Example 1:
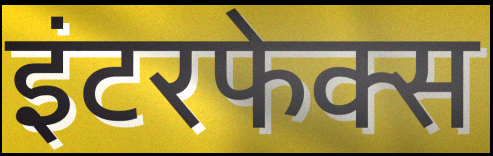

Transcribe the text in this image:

इंटरफेक्स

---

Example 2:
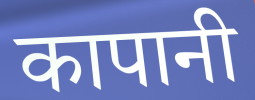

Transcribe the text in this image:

कापानी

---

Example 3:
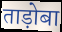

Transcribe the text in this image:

ताड़ोबा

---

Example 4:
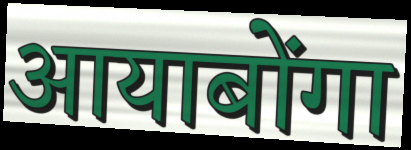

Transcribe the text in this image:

आयाबोंगा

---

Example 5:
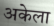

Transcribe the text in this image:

अकेला